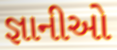
જ્ઞાનીઓ